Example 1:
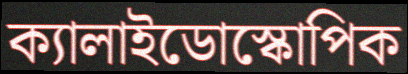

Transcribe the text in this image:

ক্যালাইডোস্কোপিক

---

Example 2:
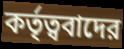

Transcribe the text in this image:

কর্তৃত্ববাদের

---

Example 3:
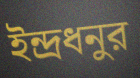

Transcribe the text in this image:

ইন্দ্রধনুর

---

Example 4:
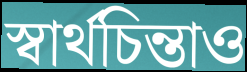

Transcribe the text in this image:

স্বার্থচিন্তাও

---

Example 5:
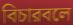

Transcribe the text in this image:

বিচারবলে